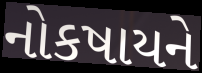
નોકષાયને